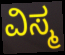
ವಿಸ್ಮ